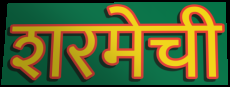
शरमेची